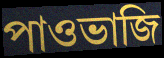
পাওভাজি